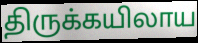
திருக்கயிலாய